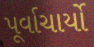
પૂર્વાચાર્યો